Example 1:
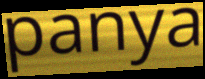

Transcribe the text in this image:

panya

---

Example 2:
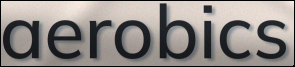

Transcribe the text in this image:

aerobics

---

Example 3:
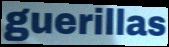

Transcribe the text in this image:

guerillas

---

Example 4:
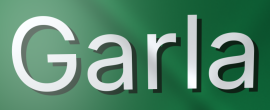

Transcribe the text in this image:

Garla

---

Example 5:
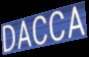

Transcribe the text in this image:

DACCA